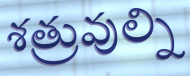
శత్రువుల్ని